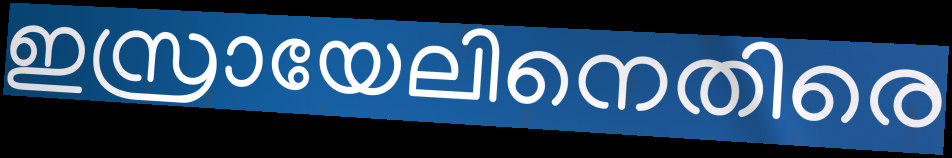
ഇസ്രായേലിനെതിരെ